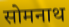
सोमनाथ